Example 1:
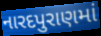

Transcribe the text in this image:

નારદપુરાણમાં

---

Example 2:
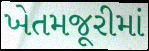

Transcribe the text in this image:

ખેતમજૂરીમાં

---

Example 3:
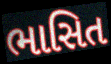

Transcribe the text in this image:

ભાસિત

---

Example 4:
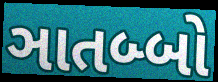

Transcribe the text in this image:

ઞાતબ્બો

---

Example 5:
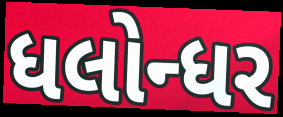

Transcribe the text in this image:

ધલોન્ધર